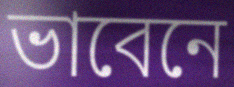
ভাবেনে